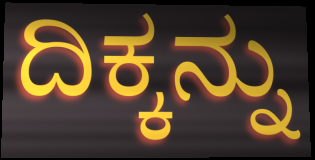
ದಿಕ್ಕನ್ನು